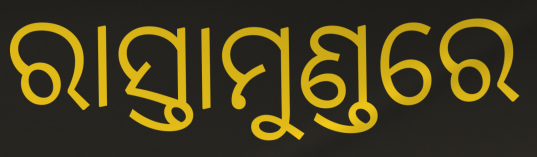
ରାସ୍ତାମୁଣ୍ଡରେ